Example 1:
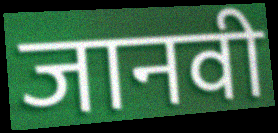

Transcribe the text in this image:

जानवी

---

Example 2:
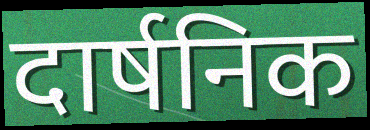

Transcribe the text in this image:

दार्षनिक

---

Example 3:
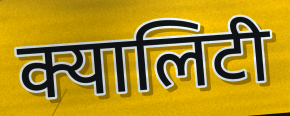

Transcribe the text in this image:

क्यालिटी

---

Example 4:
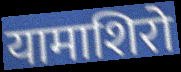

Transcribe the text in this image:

यामाशिरो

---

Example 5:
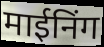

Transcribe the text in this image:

माईनिंग